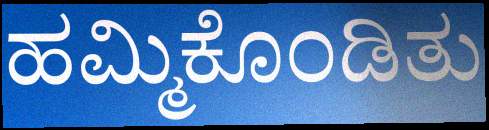
ಹಮ್ಮಿಕೊಂಡಿತು